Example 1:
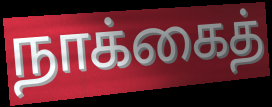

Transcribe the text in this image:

நாக்கைத்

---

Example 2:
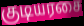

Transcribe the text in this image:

குடியரசை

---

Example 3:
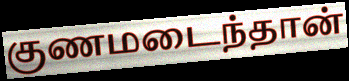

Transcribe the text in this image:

குணமடைந்தான்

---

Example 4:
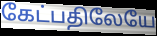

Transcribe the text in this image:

கேட்பதிலேயே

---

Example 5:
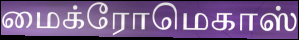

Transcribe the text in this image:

மைக்ரோமெகாஸ்